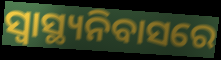
ସ୍ଵାସ୍ଥ୍ୟନିବାସରେ